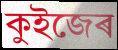
কুইজেৰ